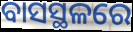
ବାସସ୍ଥଳରେ